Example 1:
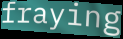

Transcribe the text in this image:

fraying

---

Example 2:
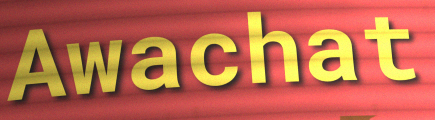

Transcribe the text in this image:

Awachat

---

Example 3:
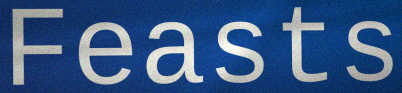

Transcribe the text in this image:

Feasts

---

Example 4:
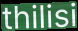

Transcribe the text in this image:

thilisi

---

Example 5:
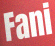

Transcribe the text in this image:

Fani